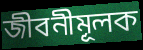
জীবনীমূলক